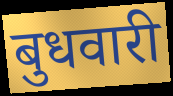
बुधवारी